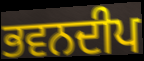
ਭਵਨਦੀਪ